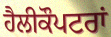
ਹੈਲੀਕੌਪਟਰਾਂ